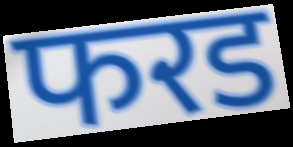
फरड